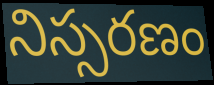
నిస్సరణం